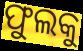
ଫୁଲକୁ